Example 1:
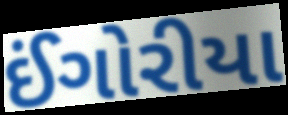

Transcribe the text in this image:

ઈંગોરીયા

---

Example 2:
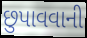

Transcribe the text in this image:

છુપાવવાની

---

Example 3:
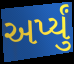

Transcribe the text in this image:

અર્પ્યું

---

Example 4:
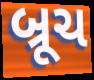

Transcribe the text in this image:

બ્રૂચ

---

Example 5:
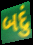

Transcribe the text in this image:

બદું